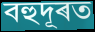
বহুদূৰত